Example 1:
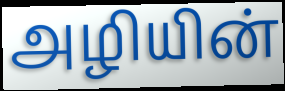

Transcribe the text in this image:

அழியின்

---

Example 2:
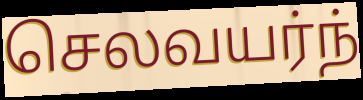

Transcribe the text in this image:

செலவயர்ந்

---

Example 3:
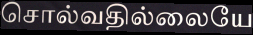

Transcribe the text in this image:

சொல்வதில்லையே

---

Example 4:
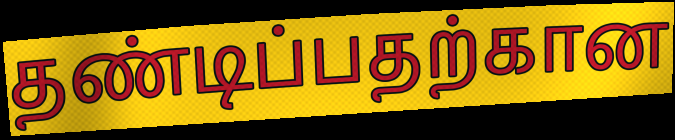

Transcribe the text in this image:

தண்டிப்பதற்கான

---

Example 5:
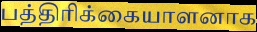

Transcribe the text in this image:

பத்திரிக்கையாளனாக